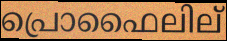
പ്രൊഫൈലില്